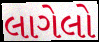
લાગેલો